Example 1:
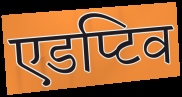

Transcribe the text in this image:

एडप्टिव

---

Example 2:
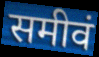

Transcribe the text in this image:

समीवं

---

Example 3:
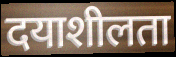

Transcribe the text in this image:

दयाशीलता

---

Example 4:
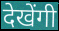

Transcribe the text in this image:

देखेंगी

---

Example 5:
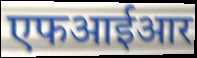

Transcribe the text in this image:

एफआईआर